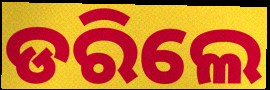
ଡରିଲେ